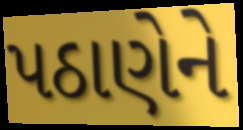
પઠાણેને